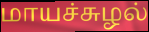
மாயச்சுழல்